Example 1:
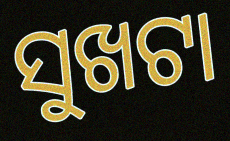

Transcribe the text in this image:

ସୁଖଟା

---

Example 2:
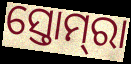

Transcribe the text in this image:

ସ୍ତୋମ୍‌ରା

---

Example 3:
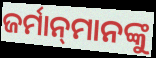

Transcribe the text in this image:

ଜର୍ମାନ୍‌ମାନଙ୍କୁ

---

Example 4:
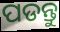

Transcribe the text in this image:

ପଡନ୍ତୁ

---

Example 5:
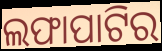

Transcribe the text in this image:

ଲଫାପାଟିର